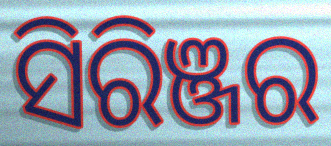
ସିରିଞ୍ଜର